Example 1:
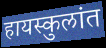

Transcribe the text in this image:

हायस्कुलांत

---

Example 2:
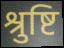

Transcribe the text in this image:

श्रुष्टि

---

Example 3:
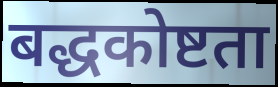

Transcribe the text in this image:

बद्धकोष्टता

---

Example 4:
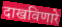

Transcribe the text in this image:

दाखविणारे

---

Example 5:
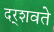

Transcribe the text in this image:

दर्शवते